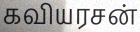
கவியரசன்